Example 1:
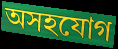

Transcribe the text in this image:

অসহযোগ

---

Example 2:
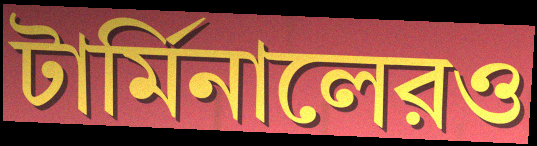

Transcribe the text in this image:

টার্মিনালেরও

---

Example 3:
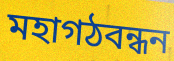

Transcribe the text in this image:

মহাগঠবন্ধন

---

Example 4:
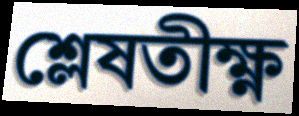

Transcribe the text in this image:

শ্লেষতীক্ষ্ণ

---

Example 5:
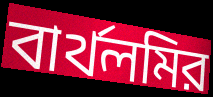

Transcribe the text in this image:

বার্থলমির